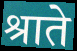
श्राते